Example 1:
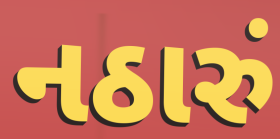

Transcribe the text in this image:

નઠારું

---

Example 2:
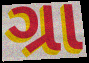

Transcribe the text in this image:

ગ્રા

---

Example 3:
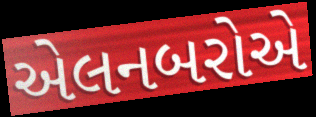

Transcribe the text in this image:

એલનબરોએ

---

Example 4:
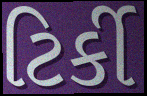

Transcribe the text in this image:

ટિર્કી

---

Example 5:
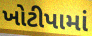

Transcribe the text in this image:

ખોટીપામાં